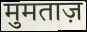
मुमताज़